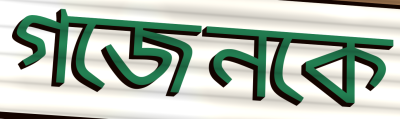
গজেনকে